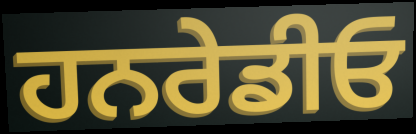
ਹਨਰੇਡੀਓ